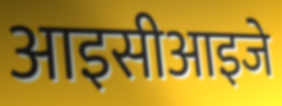
आइसीआइजे